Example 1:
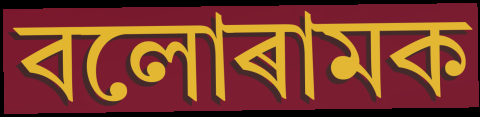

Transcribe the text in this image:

বলোৰামক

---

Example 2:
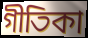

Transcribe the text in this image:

গীতিকা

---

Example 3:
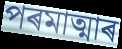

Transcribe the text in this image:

পৰমাত্মাৰ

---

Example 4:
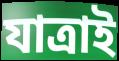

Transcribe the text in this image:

যাত্ৰাই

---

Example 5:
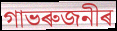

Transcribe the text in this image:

গাভৰুজনীৰ